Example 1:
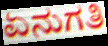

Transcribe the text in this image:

ಏನುಗತಿ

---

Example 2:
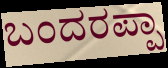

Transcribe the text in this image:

ಬಂದರಪ್ಪಾ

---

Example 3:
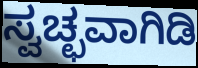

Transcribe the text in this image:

ಸ್ವಚ್ಛವಾಗಿಡಿ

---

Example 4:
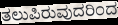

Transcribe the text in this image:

ತಲುಪಿರುವುದರಿಂದ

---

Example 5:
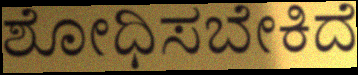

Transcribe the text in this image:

ಶೋಧಿಸಬೇಕಿದೆ